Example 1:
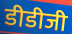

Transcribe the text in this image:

डीडीजी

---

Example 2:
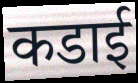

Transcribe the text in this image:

कडाई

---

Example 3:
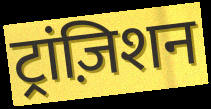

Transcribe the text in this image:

ट्रांज़िशन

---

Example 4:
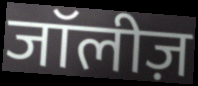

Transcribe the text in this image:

जॉलीज़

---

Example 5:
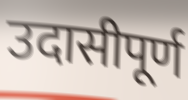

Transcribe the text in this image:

उदासीपूर्ण